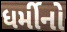
ધર્મીનો